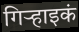
गिऱ्हाइकं